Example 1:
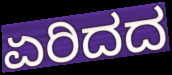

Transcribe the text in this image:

ಏರಿದದ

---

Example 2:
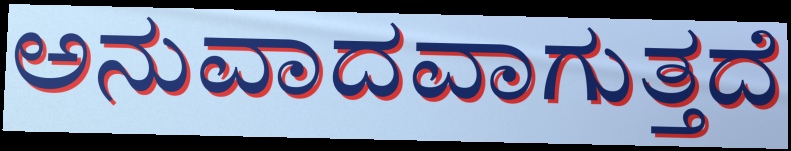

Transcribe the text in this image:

ಅನುವಾದವಾಗುತ್ತದೆ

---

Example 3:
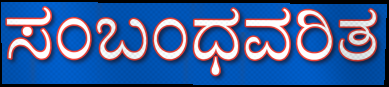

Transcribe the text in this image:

ಸಂಬಂಧವರಿತ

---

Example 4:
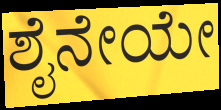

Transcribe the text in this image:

ಶೈನೇಯೇ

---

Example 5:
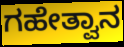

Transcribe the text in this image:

ಗಹೇತ್ವಾನ